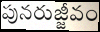
పునరుజ్జీవం